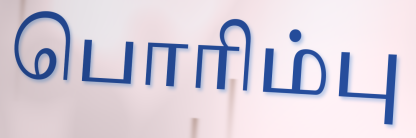
பொரிம்பு